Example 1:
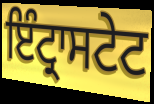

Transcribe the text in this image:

ਇੰਟ੍ਰਾਸਟੇਟ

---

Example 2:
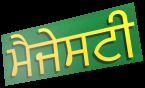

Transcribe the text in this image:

ਮੈਜੇਸਟੀ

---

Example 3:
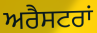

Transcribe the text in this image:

ਅਰੈਸਟਰਾਂ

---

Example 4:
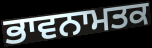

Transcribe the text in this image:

ਭਾਵਨਾਮਤਕ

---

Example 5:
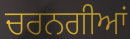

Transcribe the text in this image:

ਚਰਨਗੀਆਂ